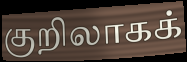
குறிலாகக்